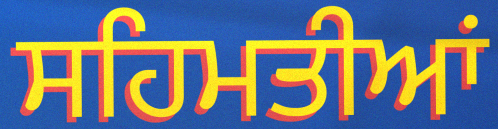
ਸਹਿਮਤੀਆਂ